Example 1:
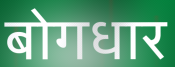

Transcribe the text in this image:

बोगधार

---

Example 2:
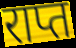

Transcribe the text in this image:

राप्त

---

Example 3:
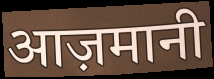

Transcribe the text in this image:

आज़मानी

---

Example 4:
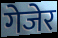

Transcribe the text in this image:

गेजेर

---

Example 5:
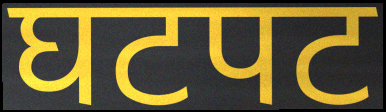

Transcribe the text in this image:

घटपट